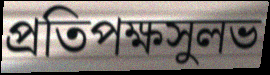
প্রতিপক্ষসুলভ